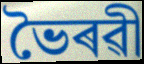
ভৈৰৱী